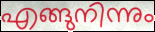
എങ്ങുനിന്നും